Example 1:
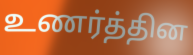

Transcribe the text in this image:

உணர்த்தின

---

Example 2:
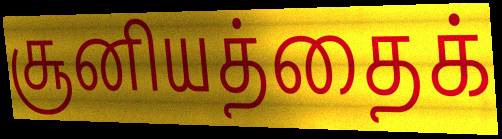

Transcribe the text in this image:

சூனியத்தைக்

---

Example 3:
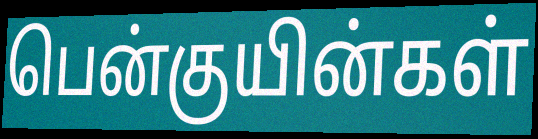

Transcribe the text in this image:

பென்குயின்கள்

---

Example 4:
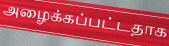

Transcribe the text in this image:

அழைக்கப்பட்டதாக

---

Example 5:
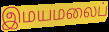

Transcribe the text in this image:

இமயமலைப்